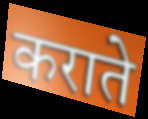
कराते